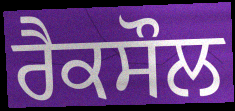
ਰੈਕਸੌਲ